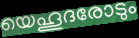
യെഹൂദരോടും